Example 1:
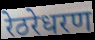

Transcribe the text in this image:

रेठरेधरण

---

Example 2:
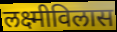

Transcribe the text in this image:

लक्ष्मीविलास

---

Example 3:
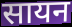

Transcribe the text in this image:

सायन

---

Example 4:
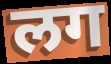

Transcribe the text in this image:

लग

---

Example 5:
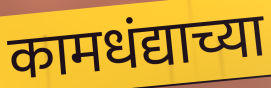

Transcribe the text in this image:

कामधंद्याच्या